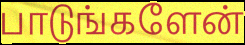
பாடுங்களேன்